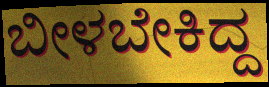
ಬೀಳಬೇಕಿದ್ದ